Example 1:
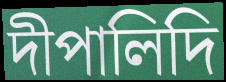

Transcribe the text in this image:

দীপালিদি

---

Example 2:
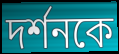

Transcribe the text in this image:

দর্শনকে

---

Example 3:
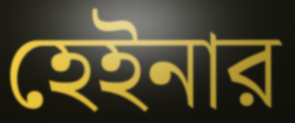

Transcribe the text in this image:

হেইনার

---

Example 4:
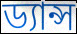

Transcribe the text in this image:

ড্যান্স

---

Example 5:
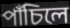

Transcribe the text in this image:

পাঁচিলে